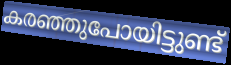
കരഞ്ഞുപോയിട്ടുണ്ട്